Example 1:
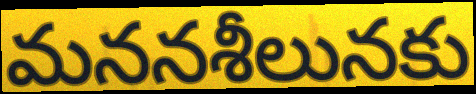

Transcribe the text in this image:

మననశీలునకు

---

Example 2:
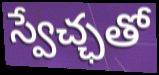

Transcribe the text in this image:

స్వేచ్ఛతో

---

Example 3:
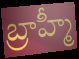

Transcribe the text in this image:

బ్రాహ్మీ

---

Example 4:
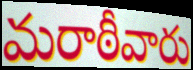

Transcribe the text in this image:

మరాఠీవారు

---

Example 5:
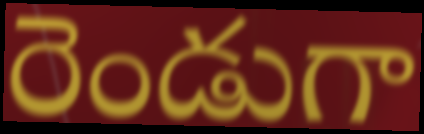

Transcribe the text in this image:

రెండుగా